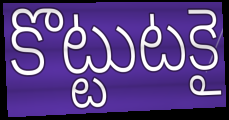
కొట్టుటకై